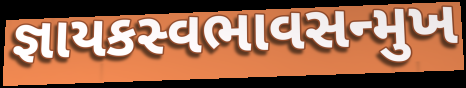
જ્ઞાયકસ્વભાવસન્મુખ